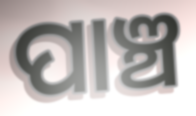
ପାଞ୍ଚ